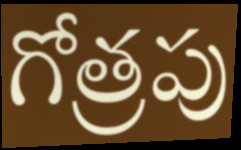
గోత్రపు